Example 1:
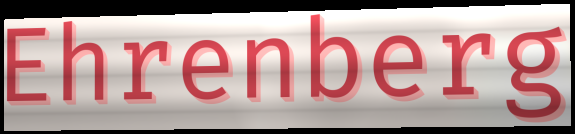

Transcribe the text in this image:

Ehrenberg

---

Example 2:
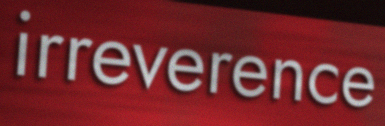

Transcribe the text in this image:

irreverence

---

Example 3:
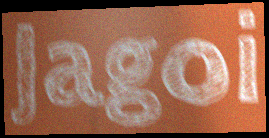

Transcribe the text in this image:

Jagoi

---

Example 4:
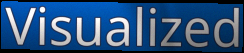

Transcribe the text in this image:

Visualized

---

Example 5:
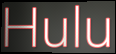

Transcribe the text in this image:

Hulu